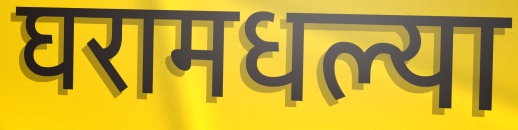
घरामधल्या